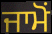
ਜਾਮੋਂ